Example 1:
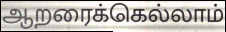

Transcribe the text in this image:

ஆறரைக்கெல்லாம்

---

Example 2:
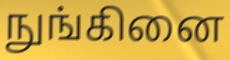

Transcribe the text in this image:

நுங்கினை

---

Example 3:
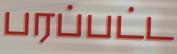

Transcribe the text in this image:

பரப்பட்ட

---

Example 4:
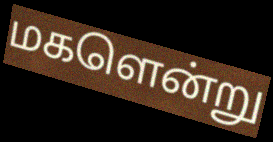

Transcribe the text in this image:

மகளென்று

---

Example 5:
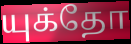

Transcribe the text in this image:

யுக்தோ